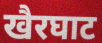
खैरघाट